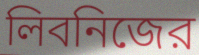
লিবনিজের